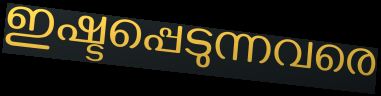
ഇഷ്ടപ്പെടുന്നവരെ